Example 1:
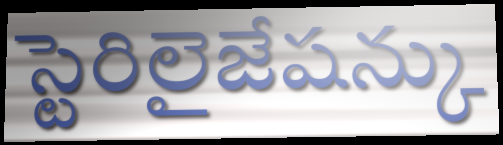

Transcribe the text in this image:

స్టెరిలైజేషన్కు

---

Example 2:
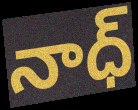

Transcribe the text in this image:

నాధ్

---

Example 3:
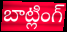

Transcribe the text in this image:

బాట్లింగ్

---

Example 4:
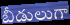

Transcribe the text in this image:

బీడులుగా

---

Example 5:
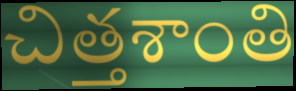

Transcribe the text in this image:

చిత్తశాంతి